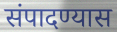
संपादण्यास